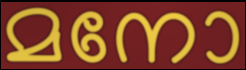
മനോ